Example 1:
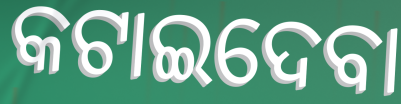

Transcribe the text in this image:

କଟାଇଦେବା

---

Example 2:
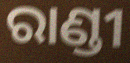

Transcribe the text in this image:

ରାଣ୍ଡୀ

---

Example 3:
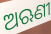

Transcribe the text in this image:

ଅଋଣୀ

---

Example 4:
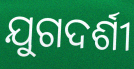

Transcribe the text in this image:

ଯୁଗଦର୍ଶୀ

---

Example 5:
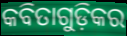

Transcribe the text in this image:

କବିତାଗୁଡ଼ିକର